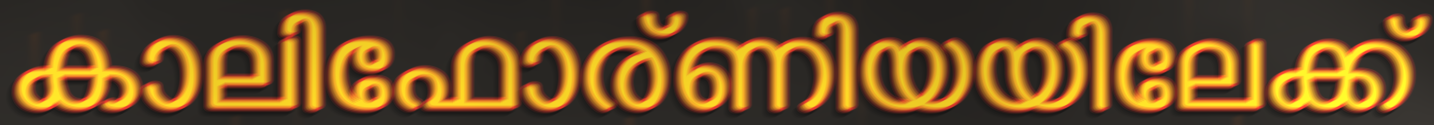
കാലിഫോര്ണിയയിലേക്ക്